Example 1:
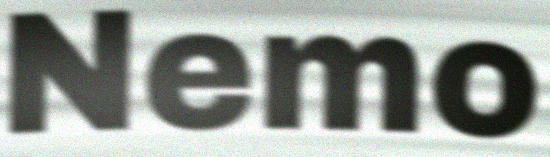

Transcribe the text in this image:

Nemo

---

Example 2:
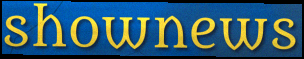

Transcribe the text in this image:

shownews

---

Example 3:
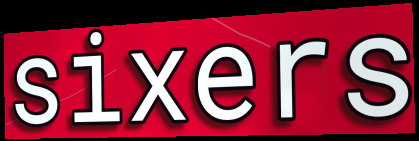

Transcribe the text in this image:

sixers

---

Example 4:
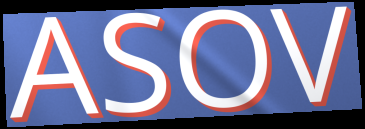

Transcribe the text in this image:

ASOV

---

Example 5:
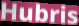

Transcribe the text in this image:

Hubris